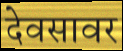
देवसावर